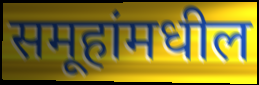
समूहांमधील